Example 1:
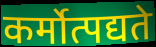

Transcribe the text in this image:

कर्मोत्पद्यते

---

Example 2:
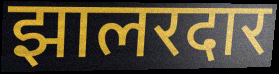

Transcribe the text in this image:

झालरदार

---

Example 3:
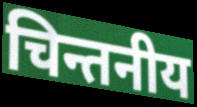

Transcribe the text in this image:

चिन्तनीय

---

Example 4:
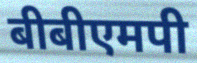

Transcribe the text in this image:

बीबीएमपी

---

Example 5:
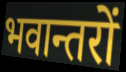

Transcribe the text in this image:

भवान्तरों